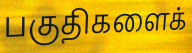
பகுதிகளைக்